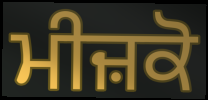
ਮੀਜ਼ਕੋ